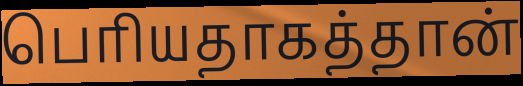
பெரியதாகத்தான்